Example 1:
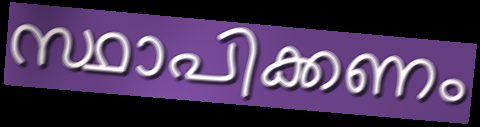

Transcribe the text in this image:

സ്ഥാപിക്കണം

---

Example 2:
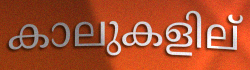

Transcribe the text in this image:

കാലുകളില്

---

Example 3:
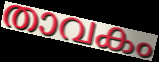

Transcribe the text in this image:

താവകം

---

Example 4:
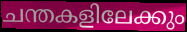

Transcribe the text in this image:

ചന്തകളിലേക്കും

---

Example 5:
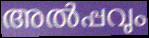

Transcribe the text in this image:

അൽപ്പവും